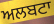
ਅਲਬਟਾ